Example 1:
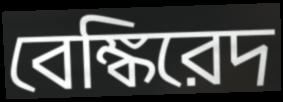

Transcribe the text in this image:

বেঙ্কিরেদ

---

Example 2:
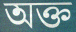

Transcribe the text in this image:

অক্ত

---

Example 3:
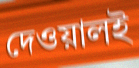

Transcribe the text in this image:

দেওয়ালই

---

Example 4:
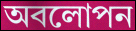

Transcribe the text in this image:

অবলোপন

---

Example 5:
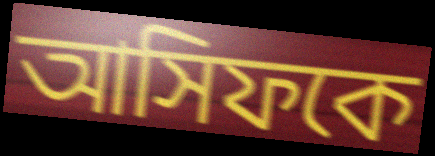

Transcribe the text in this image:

আসিফকে